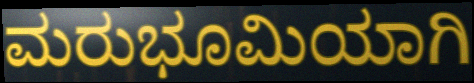
ಮರುಭೂಮಿಯಾಗಿ